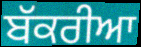
ਬੱਕਰੀਆ